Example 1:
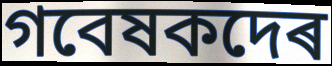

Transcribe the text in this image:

গবেষকদেৰ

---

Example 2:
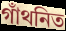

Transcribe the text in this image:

গাঁথনিত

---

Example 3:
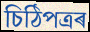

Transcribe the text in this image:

চিঠিপত্ৰৰ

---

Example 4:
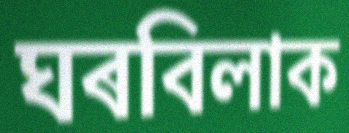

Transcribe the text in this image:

ঘৰবিলাক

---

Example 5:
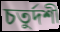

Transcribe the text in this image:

চতুৰ্দশী